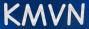
KMVN